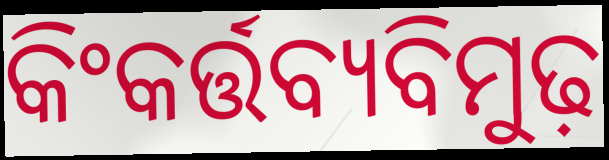
କିଂକର୍ତ୍ତବ୍ୟବିମୁଢ଼